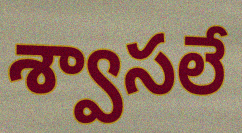
శ్వాసలే